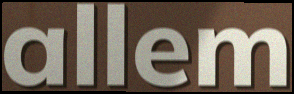
allem